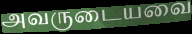
அவருடையவை